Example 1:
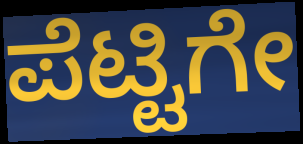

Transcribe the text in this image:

ಪೆಟ್ಟಿಗೇ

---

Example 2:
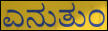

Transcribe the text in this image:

ಎನುತುಂ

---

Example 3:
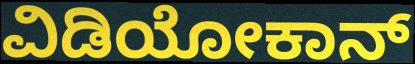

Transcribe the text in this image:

ವಿಡಿಯೋಕಾನ್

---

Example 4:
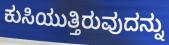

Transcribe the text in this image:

ಕುಸಿಯುತ್ತಿರುವುದನ್ನು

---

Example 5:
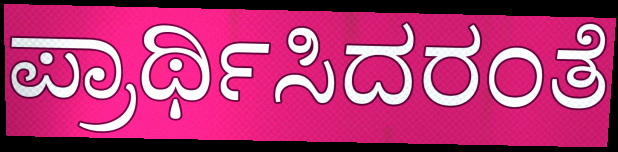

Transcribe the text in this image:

ಪ್ರಾರ್ಥಿಸಿದರಂತೆ